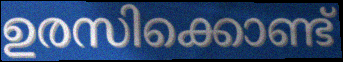
ഉരസിക്കൊണ്ട്